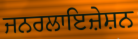
ਜਨਰਲਾਇਜ਼ੇਸ਼ਨ